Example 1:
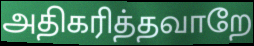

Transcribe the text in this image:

அதிகரித்தவாறே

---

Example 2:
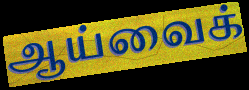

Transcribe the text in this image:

ஆய்வைக்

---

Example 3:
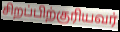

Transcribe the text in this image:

சிறப்பிற்குரியவர்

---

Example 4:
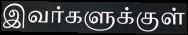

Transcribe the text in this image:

இவர்களுக்குள்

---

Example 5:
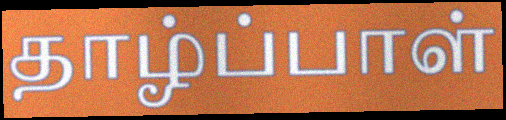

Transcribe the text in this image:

தாழ்ப்பாள்